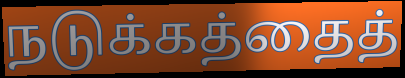
நடுக்கத்தைத்